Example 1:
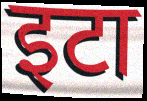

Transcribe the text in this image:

इटा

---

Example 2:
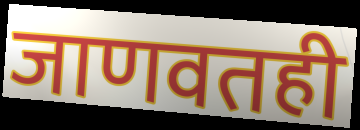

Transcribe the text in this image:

जाणवतही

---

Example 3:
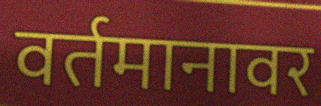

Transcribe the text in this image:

वर्तमानावर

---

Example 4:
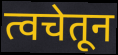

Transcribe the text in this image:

त्वचेतून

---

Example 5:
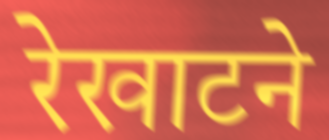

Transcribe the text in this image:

रेखाटने